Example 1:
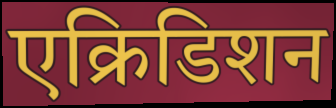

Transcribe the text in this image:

एक्रिडिशन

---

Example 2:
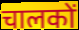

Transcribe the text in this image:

चालकों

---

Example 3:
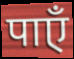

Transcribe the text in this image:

पाएँ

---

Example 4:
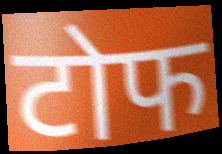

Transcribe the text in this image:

टोफ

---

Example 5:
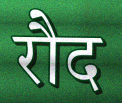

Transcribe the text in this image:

रौद